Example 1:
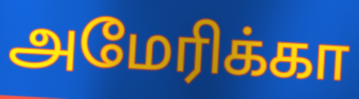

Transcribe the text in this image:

அமேரிக்கா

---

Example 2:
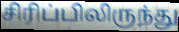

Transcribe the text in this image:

சிரிப்பிலிருந்து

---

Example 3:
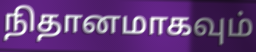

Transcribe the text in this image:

நிதானமாகவும்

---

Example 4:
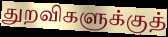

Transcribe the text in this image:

துறவிகளுக்குத்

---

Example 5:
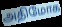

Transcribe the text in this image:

அதிமோக